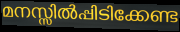
മനസ്സിൽപ്പിടിക്കേണ്ട